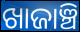
ଖାଜାଞ୍ଚି